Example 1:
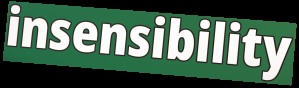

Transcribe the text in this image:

insensibility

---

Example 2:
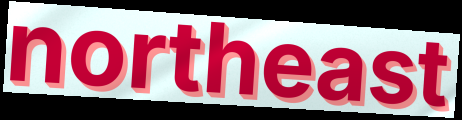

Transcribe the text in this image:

northeast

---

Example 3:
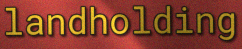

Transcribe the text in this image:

landholding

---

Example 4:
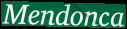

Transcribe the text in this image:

Mendonca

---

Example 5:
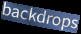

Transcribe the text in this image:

backdrops